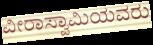
ವೀರಾಸ್ವಾಮಿಯವರು